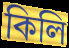
কিলি